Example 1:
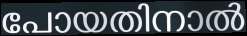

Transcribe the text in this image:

പോയതിനാൽ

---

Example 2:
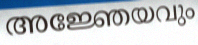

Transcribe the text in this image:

അജ്ഞേയവും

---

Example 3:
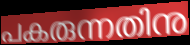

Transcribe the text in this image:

പകരുന്നതിനു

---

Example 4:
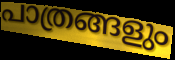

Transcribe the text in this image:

പാത്രങ്ങളും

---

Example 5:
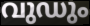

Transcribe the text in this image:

വുഡും